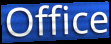
Office